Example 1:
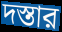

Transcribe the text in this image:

দস্তার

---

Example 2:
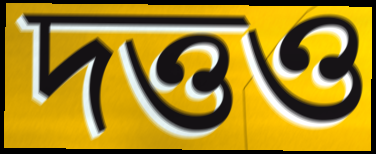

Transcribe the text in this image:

দত্তও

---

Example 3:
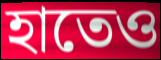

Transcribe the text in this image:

হাতেও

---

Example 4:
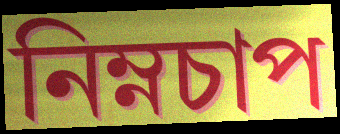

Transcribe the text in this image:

নিম্নচাপ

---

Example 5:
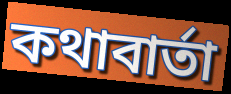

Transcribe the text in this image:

কথাবার্তা